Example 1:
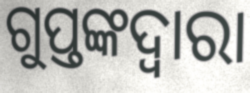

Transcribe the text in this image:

ଗୁପ୍ତଙ୍କଦ୍ୱାରା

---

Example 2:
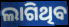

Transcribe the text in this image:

ଲାଗିଥିବ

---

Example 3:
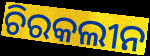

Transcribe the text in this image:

ଚିରକଲୀନ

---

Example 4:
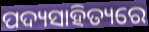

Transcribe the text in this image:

ପଦ୍ୟସାହିତ୍ୟରେ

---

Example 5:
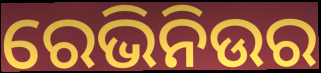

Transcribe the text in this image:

ରେଭିନିଉର